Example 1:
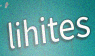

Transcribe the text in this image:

lihites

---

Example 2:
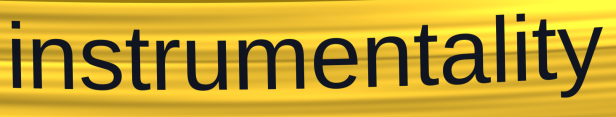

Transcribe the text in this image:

instrumentality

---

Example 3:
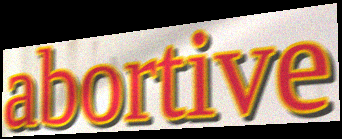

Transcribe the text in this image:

abortive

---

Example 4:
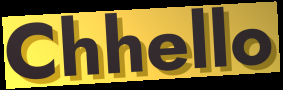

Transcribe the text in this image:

Chhello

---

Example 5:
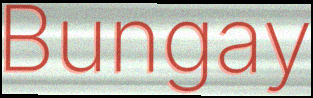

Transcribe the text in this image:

Bungay